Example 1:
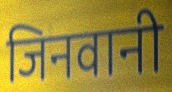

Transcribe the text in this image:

जिनवानी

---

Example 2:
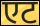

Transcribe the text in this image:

एट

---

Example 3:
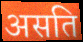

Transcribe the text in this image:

असति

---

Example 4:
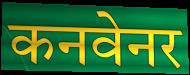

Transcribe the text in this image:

कनवेनर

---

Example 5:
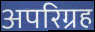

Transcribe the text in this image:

अपरिग्रह